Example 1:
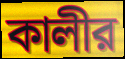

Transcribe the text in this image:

কালীর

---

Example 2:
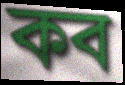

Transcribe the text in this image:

কব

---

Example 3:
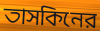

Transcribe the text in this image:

তাসকিনের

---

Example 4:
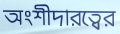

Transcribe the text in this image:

অংশীদারত্বের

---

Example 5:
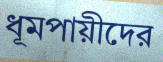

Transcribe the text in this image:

ধূমপায়ীদের